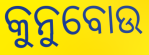
କୁନୁବୋଉ